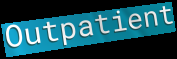
Outpatient